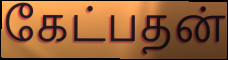
கேட்பதன்